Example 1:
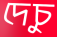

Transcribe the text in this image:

দেচু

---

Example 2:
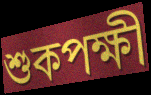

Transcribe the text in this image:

শুকপক্ষী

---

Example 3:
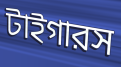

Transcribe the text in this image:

টাইগারস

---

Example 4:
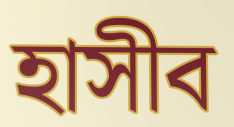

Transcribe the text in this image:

হাসীব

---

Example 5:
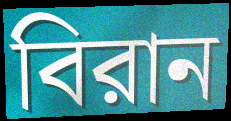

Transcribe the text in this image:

বিরান